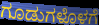
ಗೂಡುಗಳೊಳಗೆ